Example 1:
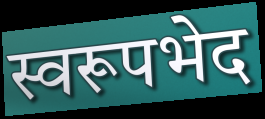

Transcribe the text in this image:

स्वरूपभेद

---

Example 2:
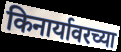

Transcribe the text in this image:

किनार्यावरच्या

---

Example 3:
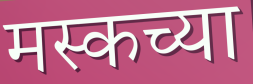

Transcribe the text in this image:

मस्कच्या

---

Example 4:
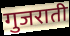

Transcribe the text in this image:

गुजराती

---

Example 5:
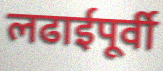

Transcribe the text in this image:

लढाईपूर्वी